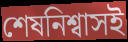
শেষনিশ্বাসই